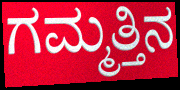
ಗಮ್ಮತ್ತಿನ